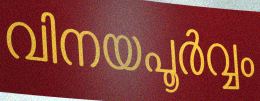
വിനയപൂർവ്വം